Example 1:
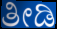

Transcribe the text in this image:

ತೀಡಿ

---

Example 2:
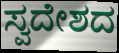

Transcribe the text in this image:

ಸ್ವದೇಶದ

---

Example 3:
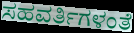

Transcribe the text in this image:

ಸಹವರ್ತಿಗಳಂತೆ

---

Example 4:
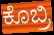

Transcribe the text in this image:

ಕೊಬ್ರಿ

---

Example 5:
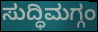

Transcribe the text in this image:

ಸುದ್ಧಿಮಗ್ಗಂ